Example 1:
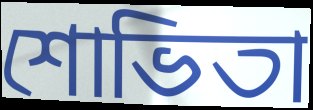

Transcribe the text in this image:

শোভিতা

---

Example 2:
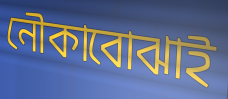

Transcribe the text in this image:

নৌকাবোঝাই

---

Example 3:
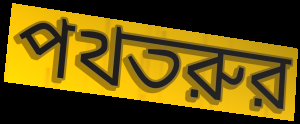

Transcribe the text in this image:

পথতরুর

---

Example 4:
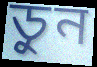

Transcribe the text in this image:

ডুন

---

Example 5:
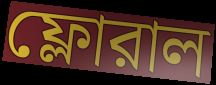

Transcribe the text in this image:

ফ্লোরাল